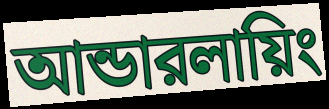
আন্ডারলায়িং